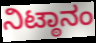
ನಿಟ್ಠಾನಂ